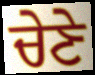
ਚੇਣੇ